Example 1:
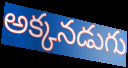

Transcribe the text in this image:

అక్కనడుగు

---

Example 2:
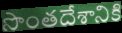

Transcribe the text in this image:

సొంతదేశానికి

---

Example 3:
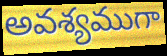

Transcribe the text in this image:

అవశ్యముగా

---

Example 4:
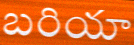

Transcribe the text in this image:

బరియా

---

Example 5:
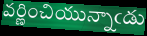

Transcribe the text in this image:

వర్ణించియున్నాఁడు